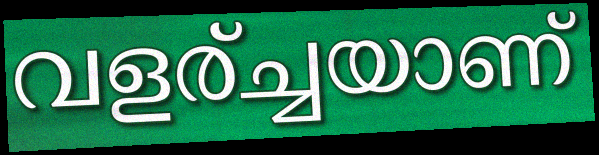
വളര്ച്ചയാണ്